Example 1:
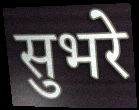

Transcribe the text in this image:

सुभरे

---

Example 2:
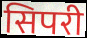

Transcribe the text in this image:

सिपरी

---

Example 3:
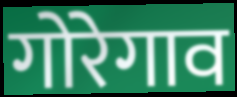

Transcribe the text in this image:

गोरेगाव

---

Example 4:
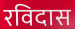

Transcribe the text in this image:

रविदास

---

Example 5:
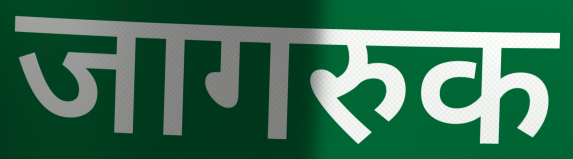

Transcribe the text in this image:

जागरुक